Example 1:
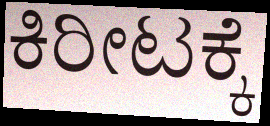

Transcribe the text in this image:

ಕಿರೀಟಕ್ಕೆ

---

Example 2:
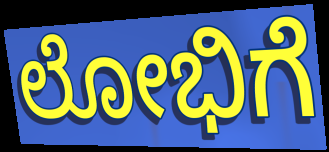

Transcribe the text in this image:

ಲೋಭಿಗೆ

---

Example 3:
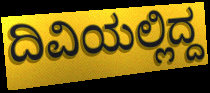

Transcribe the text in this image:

ದಿವಿಯಲ್ಲಿದ್ದ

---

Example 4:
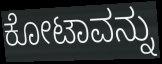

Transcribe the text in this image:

ಕೋಟಾವನ್ನು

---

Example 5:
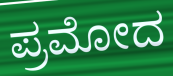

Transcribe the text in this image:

ಪ್ರಮೋದ